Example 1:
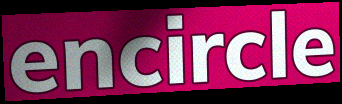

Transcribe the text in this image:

encircle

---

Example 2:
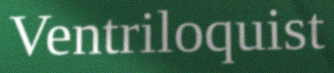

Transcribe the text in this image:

Ventriloquist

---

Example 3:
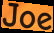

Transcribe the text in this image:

Joe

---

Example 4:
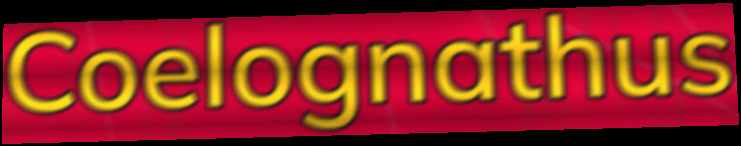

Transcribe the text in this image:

Coelognathus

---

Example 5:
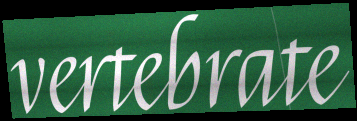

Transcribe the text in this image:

vertebrate